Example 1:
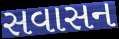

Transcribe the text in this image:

સવાસન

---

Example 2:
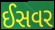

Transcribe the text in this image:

ઈસવર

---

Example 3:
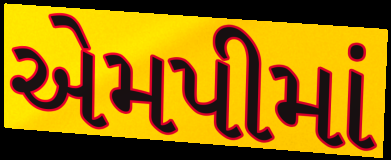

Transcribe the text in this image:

એમપીમાં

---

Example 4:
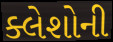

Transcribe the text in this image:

ક્લેશોની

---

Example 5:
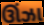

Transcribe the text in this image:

ઊંઝા